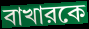
বাখারকে